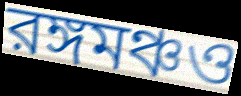
রঙ্গমঞ্চও